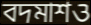
বদমাশও